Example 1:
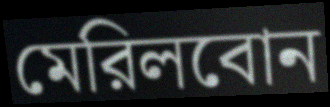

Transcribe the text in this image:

মেরিলবোন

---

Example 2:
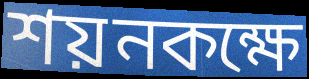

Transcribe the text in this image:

শয়নকক্ষে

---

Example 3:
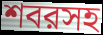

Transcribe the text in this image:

শবরসহ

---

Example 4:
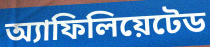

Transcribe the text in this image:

অ্যাফিলিয়েটেড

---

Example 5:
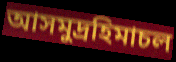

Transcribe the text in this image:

আসমুদ্রহিমাচল